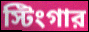
স্টিংগার